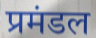
प्रमंडल